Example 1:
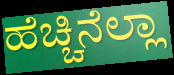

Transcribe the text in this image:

ಹೆಚ್ಚಿನೆಲ್ಲಾ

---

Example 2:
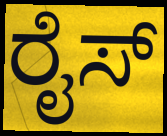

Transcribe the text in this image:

ರೈಸ್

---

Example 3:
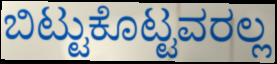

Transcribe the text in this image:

ಬಿಟ್ಟುಕೊಟ್ಟವರಲ್ಲ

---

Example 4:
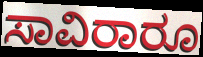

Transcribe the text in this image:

ಸಾವಿರಾರೂ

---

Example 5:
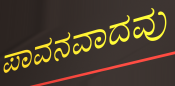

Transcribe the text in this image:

ಪಾವನವಾದವು